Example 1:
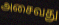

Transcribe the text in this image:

அசைவது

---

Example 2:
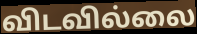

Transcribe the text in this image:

விடவில்லை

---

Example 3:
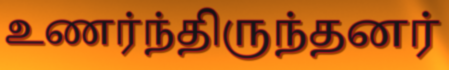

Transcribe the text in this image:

உணர்ந்திருந்தனர்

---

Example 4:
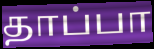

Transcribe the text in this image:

தாப்பா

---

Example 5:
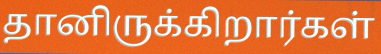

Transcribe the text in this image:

தானிருக்கிறார்கள்